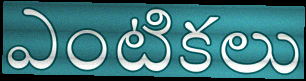
ఎంటికలు